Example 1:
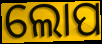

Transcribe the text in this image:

ଲୋପ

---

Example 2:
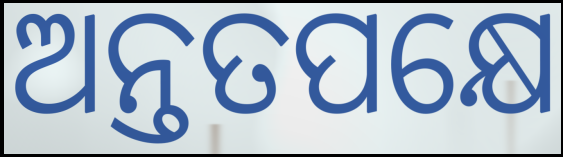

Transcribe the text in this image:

ଅନ୍ତତପକ୍ଷେ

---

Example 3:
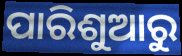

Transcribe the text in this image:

ପାରିଶୁଆରୁ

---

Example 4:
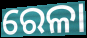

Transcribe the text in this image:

ରେଳା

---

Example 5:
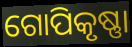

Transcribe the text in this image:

ଗୋପିକୃଷ୍ଣା